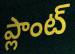
ప్లాంట్